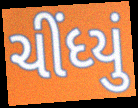
ચીંધ્યું